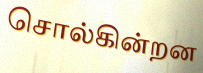
சொல்கின்றன